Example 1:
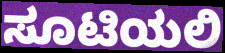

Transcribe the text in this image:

ಸೂಟಿಯಲಿ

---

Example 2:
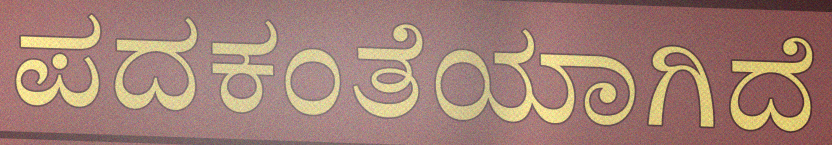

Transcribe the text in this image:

ಪದಕಂತೆಯಾಗಿದೆ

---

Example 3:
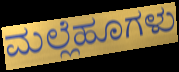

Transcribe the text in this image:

ಮಲ್ಲೆಹೂಗಳು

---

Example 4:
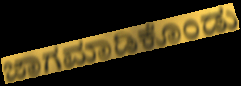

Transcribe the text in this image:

ಜಾಗಮಾಡಿಕೊಂಡು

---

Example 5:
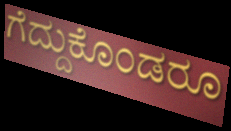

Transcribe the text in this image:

ಗೆದ್ದುಕೊಂಡರೂ